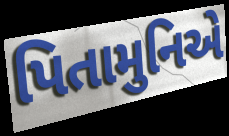
પિતામુનિએ